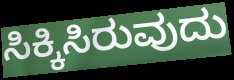
ಸಿಕ್ಕಿಸಿರುವುದು